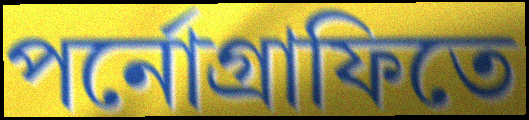
পর্নোগ্রাফিতে